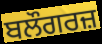
ਬਲੌਗਰਜ਼